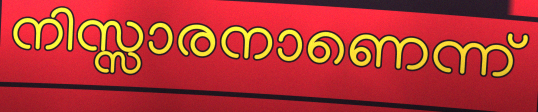
നിസ്സാരനാണെന്ന്